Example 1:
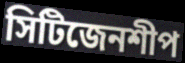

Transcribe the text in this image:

সিটিজেনশীপ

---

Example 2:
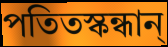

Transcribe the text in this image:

পতিতস্কন্ধান্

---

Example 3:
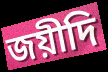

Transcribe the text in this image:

জয়ীদি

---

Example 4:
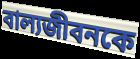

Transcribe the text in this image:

বাল্যজীবনকে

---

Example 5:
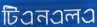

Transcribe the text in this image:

টিএনএলএ